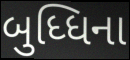
બુધ્ધિના